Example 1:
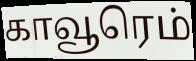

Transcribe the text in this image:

காவூரெம்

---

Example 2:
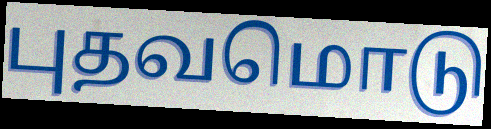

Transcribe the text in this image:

புதவமொடு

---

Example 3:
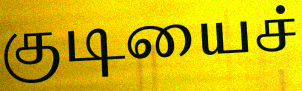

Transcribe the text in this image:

குடியைச்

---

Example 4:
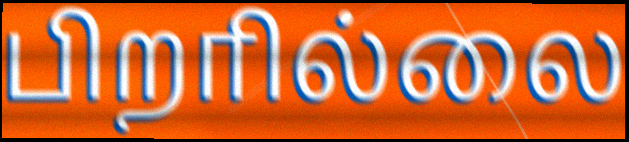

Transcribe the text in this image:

பிறரில்லை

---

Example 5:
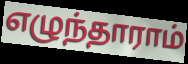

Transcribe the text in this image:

எழுந்தாராம்